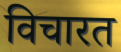
विचारत